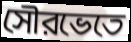
সৌরভেতে